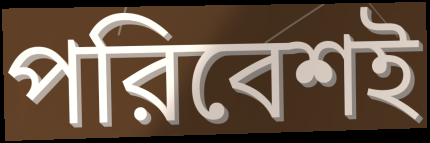
পরিবেশই